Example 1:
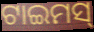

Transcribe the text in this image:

ଟାଇମସ୍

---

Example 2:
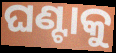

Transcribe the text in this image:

ଘଣ୍ଟାକୁ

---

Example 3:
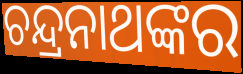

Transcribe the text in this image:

ଚନ୍ଦ୍ରନାଥଙ୍କର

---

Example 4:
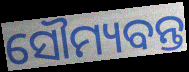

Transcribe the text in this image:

ସୌମ୍ୟବନ୍ତ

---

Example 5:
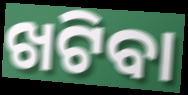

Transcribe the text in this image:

ଖଟିବା